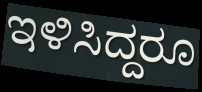
ಇಳಿಸಿದ್ದರೂ